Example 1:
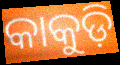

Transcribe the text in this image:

କାକୁଡ଼ି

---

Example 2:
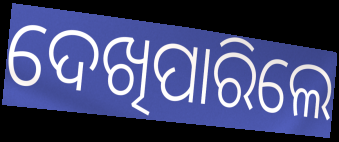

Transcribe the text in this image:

ଦେଖିପାରିଲେ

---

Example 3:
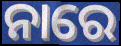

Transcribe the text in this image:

ନାରେ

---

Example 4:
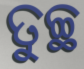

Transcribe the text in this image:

ତୁଚ୍ଛ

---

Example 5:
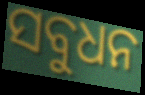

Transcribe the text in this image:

ସବୁଧନ